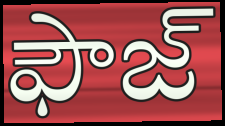
ఫౌజ్